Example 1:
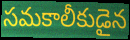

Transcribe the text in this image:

సమకాలీకుడైన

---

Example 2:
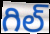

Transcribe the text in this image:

గిల్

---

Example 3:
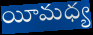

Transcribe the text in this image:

యీమధ్య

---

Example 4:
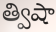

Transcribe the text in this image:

త్విషా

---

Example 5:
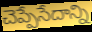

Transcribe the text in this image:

చెప్పేసేదాన్ని